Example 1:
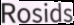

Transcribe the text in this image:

Rosids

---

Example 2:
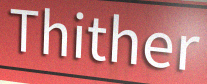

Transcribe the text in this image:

Thither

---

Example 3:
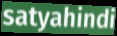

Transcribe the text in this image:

satyahindi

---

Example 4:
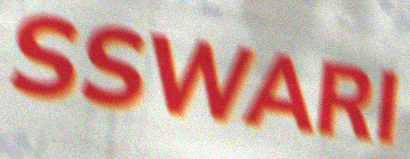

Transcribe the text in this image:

SSWARI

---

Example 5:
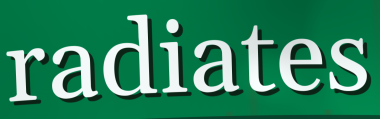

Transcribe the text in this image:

radiates